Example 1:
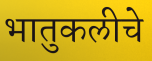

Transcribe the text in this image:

भातुकलीचे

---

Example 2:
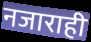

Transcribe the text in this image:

नजाराही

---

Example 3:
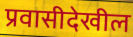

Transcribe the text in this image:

प्रवासीदेखील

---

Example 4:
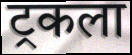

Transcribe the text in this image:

ट्रकला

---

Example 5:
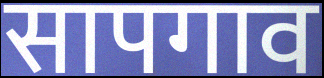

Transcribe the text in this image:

सापगाव